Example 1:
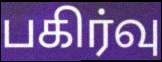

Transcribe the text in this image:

பகிர்வு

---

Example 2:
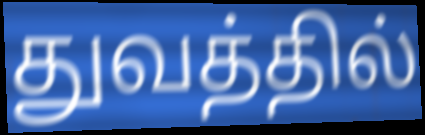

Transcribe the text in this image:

துவத்தில்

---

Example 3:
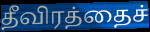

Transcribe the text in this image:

தீவிரத்தைச்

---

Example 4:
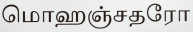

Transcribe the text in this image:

மொஹஞ்சதரோ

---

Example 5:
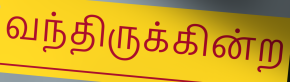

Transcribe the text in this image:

வந்திருக்கின்ற